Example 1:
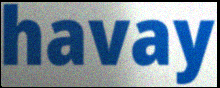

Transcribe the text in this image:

havay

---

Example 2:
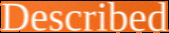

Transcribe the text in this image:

Described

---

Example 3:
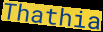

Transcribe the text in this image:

Thathia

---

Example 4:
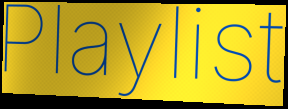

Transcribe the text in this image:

Playlist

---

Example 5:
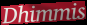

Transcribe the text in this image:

Dhimmis